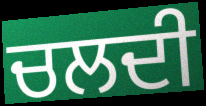
ਚਲਦੀ